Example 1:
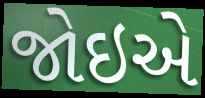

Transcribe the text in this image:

જોઇએ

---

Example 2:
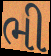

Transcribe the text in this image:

ભી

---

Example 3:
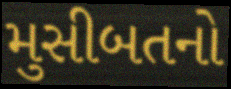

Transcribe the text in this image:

મુસીબતનો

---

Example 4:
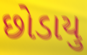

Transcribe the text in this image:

છોડાયુ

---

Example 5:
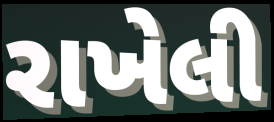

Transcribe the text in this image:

રાખેલી